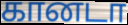
கானடா